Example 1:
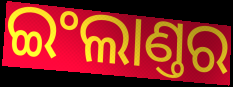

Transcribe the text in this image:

ଇଂଲାଣ୍ତର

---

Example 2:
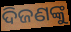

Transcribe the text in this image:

ଦିଜଣଙ୍କୁ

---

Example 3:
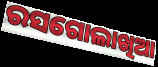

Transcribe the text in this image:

ରସଗୋଲାଖିଆ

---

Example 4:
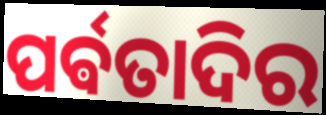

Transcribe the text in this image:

ପର୍ଵତାଦିର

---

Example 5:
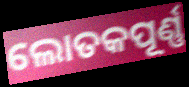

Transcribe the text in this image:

ଲୋତକପୂର୍ଣ୍ଣ